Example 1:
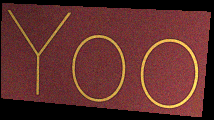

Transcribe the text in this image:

Yoo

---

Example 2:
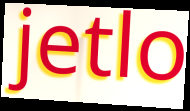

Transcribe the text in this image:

jetlo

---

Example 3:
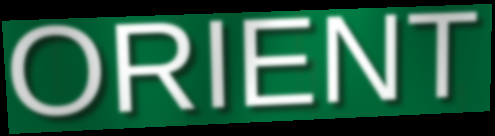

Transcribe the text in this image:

ORIENT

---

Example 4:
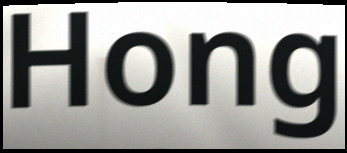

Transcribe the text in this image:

Hong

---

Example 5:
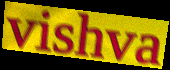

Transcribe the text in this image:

vishva